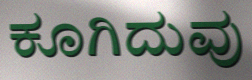
ಕೂಗಿದುವು